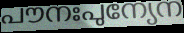
പൗനഃപുന്യേന